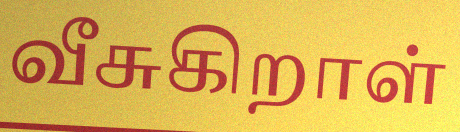
வீசுகிறாள்